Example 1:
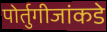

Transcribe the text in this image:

पोर्तुगीजांकडे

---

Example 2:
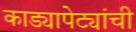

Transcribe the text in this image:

काड्यापेट्यांची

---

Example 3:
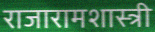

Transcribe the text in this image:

राजारामशास्त्री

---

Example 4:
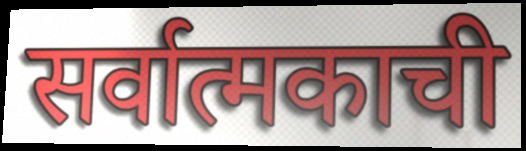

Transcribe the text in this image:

सर्वात्मकाची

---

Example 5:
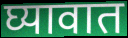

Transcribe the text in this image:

घ्यावात